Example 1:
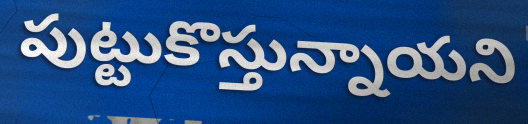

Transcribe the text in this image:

పుట్టుకొస్తున్నాయని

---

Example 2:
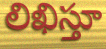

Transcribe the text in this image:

లిఖిస్తూ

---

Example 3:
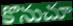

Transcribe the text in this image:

కొనుచూ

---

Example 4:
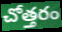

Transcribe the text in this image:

చోత్తరం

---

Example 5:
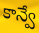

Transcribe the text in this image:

కాన్వే